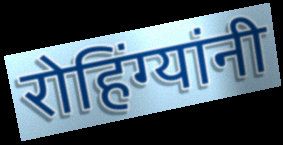
रोहिंग्यांनी